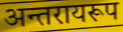
अन्तरायरूप